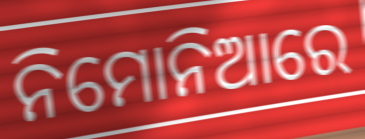
ନିମୋନିଆରେ